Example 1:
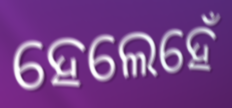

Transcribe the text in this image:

ହେଲେହେଁ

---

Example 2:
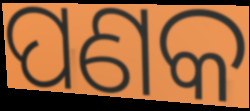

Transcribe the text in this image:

ପଣକ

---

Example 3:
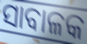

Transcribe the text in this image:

ସାବାଳକ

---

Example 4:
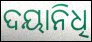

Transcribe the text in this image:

ଦୟାନିଧି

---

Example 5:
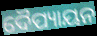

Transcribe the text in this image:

ଦୈପ୍ୟାୟନ